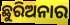
ଛୁରିଅନାର